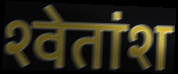
श्वेतांश